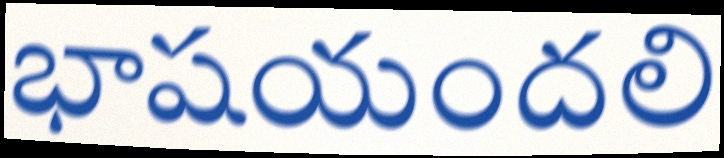
భాషయందలి